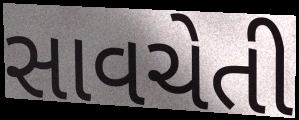
સાવચેતી